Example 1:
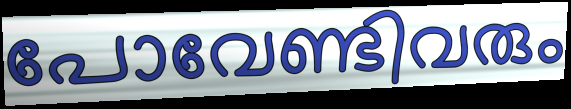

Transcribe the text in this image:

പോവേണ്ടിവരും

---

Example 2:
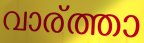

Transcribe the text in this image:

വാര്ത്താ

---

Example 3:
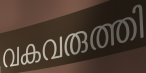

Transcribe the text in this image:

വകവരുത്തി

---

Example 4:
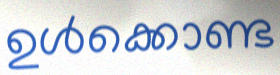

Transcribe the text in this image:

ഉൾക്കൊണ്ട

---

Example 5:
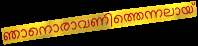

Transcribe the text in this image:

ഞാനൊരാവണിത്തെന്നലായ്